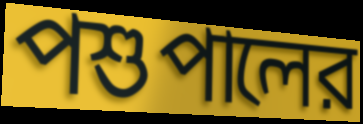
পশুপালের